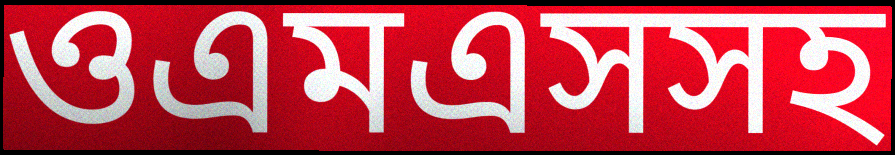
ওএমএসসহ